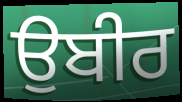
ਉਬੀਰ